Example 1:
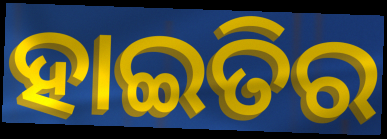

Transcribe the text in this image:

ହାଇତିର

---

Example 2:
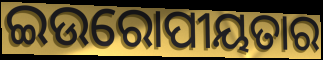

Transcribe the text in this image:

ଇଉରୋପୀୟତାର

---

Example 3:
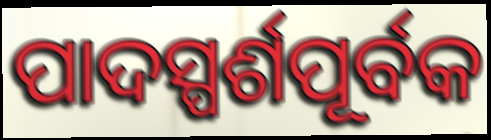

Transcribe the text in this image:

ପାଦସ୍ପର୍ଶପୂର୍ବକ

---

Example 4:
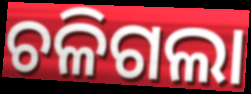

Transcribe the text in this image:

ଚଳିଗଲା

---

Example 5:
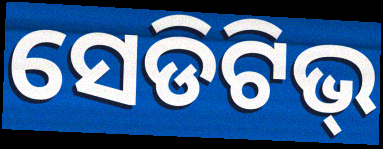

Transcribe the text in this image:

ସେଡିଟିଭ୍